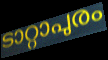
ടാറ്റാപുരം